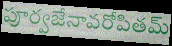
పూర్వజేనావరోపితమ్